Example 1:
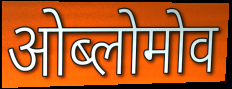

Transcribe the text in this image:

ओब्लोमोव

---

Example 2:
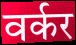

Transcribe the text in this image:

वर्कर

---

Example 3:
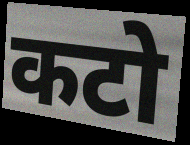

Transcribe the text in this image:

कटो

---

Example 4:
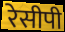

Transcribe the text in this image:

रेसीपी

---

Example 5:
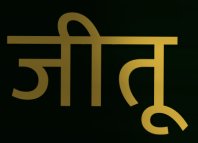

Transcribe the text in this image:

जीतू